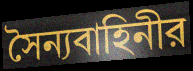
সৈন্যবাহিনীর